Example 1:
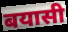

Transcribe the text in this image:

बयासी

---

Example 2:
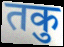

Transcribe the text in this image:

तकु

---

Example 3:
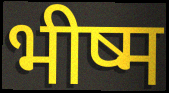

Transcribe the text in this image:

भीष्म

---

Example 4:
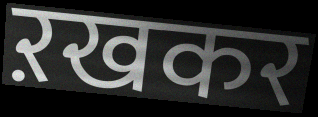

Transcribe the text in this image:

ऱखकर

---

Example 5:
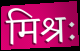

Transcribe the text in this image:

मिश्रः